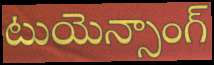
టుయెన్సాంగ్